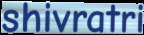
shivratri